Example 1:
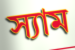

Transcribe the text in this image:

স্যাম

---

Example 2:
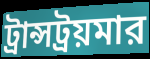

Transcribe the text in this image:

ট্রান্সট্রয়মার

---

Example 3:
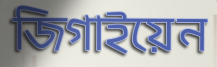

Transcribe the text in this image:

জিগাইয়েন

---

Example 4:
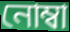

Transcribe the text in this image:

নোম্বা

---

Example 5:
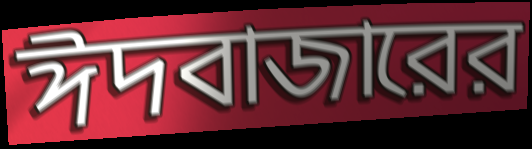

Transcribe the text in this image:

ঈদবাজারের